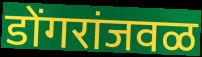
डोंगरांजवळ